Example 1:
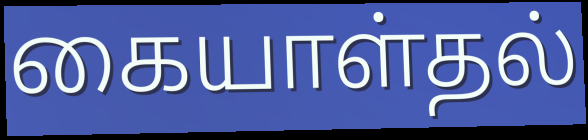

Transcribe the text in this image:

கையாள்தல்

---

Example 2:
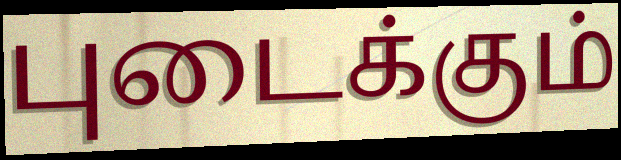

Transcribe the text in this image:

புடைக்கும்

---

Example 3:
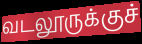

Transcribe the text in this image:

வடலூருக்குச்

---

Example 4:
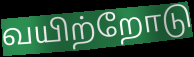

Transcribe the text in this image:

வயிற்றோடு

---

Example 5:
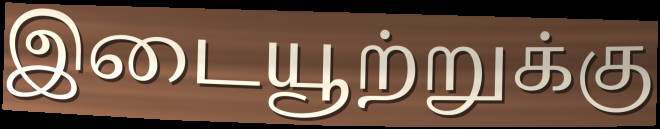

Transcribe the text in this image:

இடையூற்றுக்கு